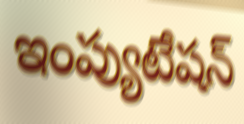
ఇంప్యుటేషన్